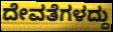
ದೇವತೆಗಳದ್ದು